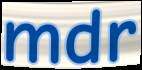
mdr